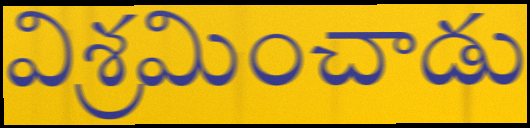
విశ్రమించాడు